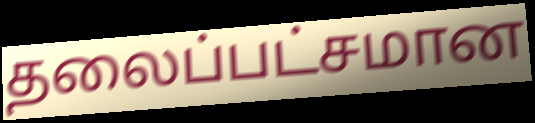
தலைப்பட்சமான